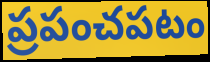
ప్రపంచపటం